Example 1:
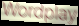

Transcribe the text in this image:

Wordplay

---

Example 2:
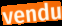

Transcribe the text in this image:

vendu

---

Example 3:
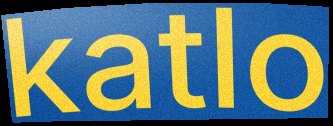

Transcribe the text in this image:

katlo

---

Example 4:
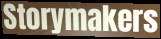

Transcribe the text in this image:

Storymakers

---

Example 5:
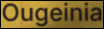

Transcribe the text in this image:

Ougeinia